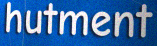
hutment